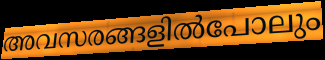
അവസരങ്ങളിൽപോലും